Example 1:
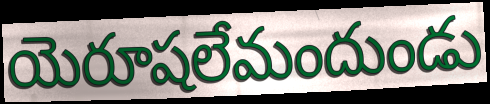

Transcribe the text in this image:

యెరూషలేమందుండు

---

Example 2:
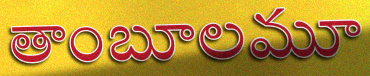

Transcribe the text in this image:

తాంబూలమూ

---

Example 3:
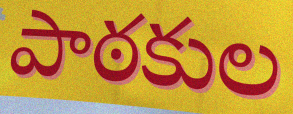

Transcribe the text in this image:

పాఠకుల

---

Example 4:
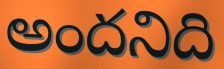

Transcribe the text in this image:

అందనిది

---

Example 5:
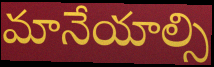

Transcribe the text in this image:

మానేయాల్సి